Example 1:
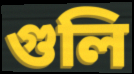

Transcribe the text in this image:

গুলি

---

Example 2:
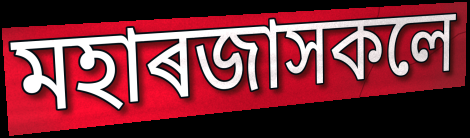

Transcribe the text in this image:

মহাৰজাসকলে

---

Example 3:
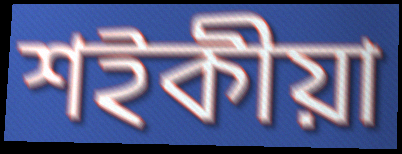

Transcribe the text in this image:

শইকীয়া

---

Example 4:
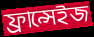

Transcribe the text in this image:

ফ্ৰান্সেইজ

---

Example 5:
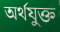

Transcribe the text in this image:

অৰ্থযুক্ত